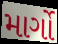
માર્ગો